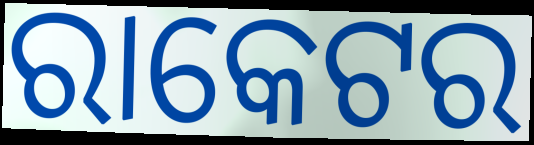
ରାକେଟର